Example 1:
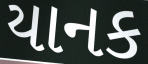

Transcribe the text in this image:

યાનક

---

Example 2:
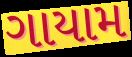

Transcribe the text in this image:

ગાયામ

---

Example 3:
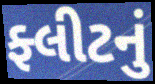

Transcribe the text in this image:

ફ્લીટનું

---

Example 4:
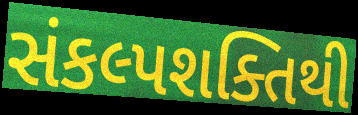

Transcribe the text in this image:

સંકલ્પશક્તિથી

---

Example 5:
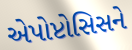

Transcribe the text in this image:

એપોપ્ટોસિસને